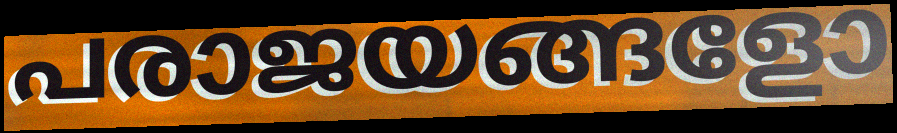
പരാജയങ്ങളോ